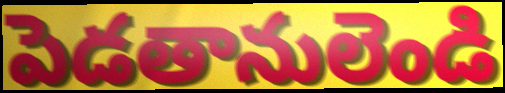
పెడతానులెండి